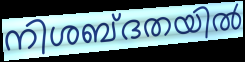
നിശബ്ദതയിൽ